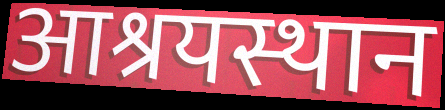
आश्रयस्थान